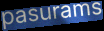
pasurams